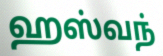
ஹஸ்வந்